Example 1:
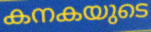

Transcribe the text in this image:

കനകയുടെ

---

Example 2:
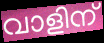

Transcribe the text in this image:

വാളിന്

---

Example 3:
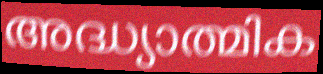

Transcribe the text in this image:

അദ്ധ്യാത്മിക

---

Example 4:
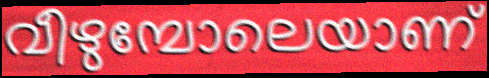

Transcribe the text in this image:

വീഴുമ്പോലെയാണ്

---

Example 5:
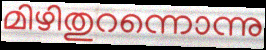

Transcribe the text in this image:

മിഴിതുറന്നൊന്നു